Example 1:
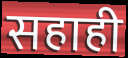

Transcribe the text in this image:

सहाही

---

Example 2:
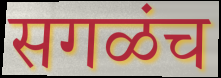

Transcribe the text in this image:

सगळंच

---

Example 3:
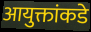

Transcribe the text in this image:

आयुक्तांकडे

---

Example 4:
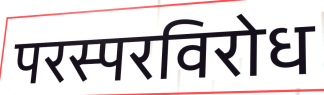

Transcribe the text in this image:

परस्परविरोध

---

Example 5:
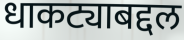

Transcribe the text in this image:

धाकट्याबद्दल